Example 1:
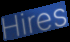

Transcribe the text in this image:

Hires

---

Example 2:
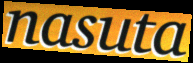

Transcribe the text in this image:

nasuta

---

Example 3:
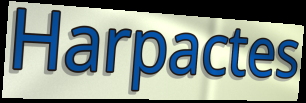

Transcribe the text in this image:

Harpactes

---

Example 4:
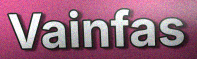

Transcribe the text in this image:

Vainfas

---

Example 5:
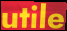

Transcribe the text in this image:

utile